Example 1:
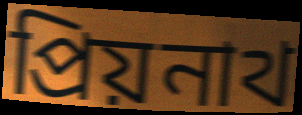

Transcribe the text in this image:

প্রিয়নাথ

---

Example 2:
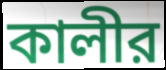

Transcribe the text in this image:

কালীর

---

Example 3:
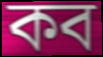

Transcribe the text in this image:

কব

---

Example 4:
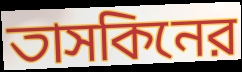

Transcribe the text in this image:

তাসকিনের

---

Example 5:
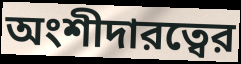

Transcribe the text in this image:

অংশীদারত্বের